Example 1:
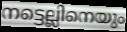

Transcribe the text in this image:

നട്ടെല്ലിനെയും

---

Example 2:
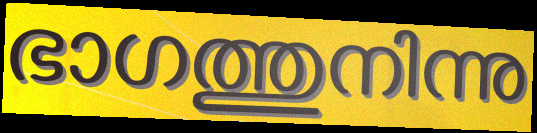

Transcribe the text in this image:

ഭാഗത്തുനിന്നു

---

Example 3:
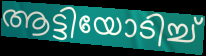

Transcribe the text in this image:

ആട്ടിയോടിച്ച്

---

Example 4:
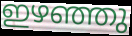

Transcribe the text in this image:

ഇഴഞ്ഞു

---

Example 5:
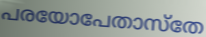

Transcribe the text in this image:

പരയോപേതാസ്തേ